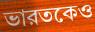
ভারতকেও